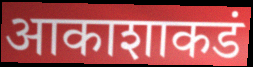
आकाशाकडं